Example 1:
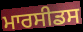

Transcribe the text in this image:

ਮਾਰਸੀਡਸ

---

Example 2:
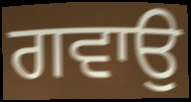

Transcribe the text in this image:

ਗਵਾਉ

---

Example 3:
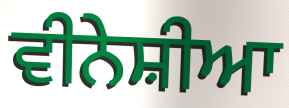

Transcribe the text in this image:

ਵੀਨੇਸ਼ੀਆ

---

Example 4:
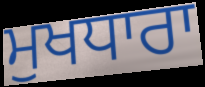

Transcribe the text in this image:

ਮੁਖਧਾਰਾ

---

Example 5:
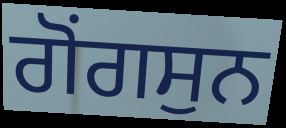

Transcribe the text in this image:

ਗੋਂਗਸੁਨ